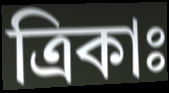
ত্রিকাঃ